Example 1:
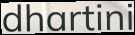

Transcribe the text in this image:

dhartini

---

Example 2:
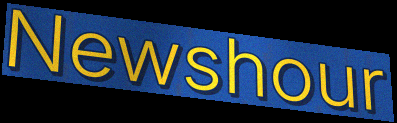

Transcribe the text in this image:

Newshour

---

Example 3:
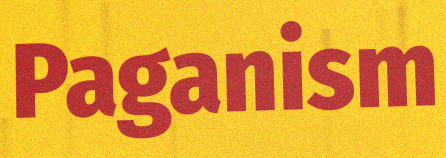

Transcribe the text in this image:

Paganism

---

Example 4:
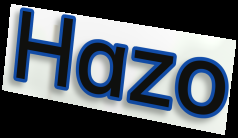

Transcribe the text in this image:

Hazo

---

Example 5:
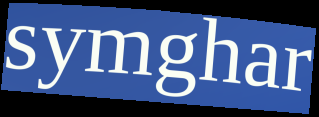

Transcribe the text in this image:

symghar